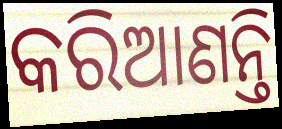
କରିଆଣନ୍ତି